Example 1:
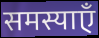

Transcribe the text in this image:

समस्याएँ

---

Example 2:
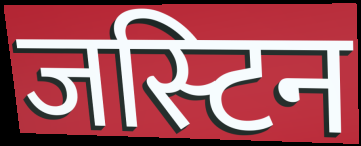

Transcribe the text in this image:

जस्‍टिन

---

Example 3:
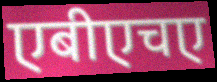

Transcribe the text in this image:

एबीएचए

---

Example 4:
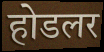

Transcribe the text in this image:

होडलर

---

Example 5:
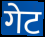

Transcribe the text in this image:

गेट